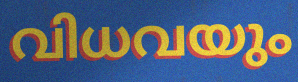
വിധവയും